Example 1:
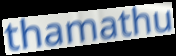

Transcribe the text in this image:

thamathu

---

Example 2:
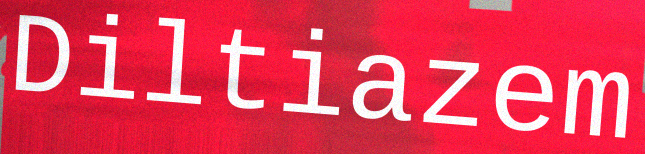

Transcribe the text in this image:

Diltiazem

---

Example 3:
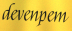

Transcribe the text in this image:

devenpem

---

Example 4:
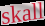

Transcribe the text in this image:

skall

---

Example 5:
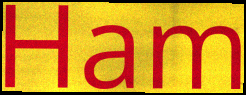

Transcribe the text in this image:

Ham